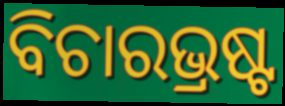
ବିଚାରଭ୍ରଷ୍ଟ